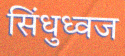
सिंधुध्वज